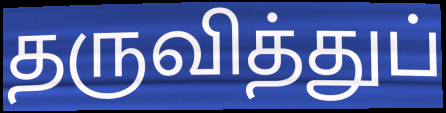
தருவித்துப்